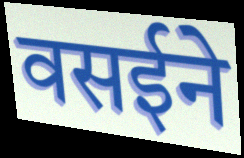
वसईने